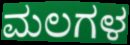
ಮಲಗಳ